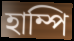
হাম্পি